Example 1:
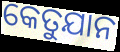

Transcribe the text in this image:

କେତୁଯାନ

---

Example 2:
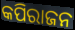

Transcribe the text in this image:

କପିରାଜନ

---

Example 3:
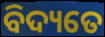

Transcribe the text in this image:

ବିଦ୍ୟତେ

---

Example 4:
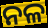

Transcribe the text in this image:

ନଳ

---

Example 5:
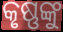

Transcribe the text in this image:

କୃଷ୍ଣଙ୍କୁ